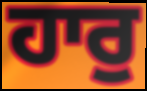
ਹਾਰੁ